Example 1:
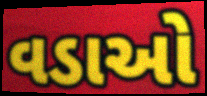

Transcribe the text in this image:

વડાઓ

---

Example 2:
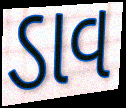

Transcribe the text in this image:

ડાવ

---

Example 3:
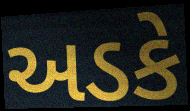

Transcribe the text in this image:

અડકે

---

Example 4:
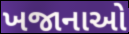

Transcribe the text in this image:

ખજાનાઓ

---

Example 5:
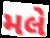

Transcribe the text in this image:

મલે